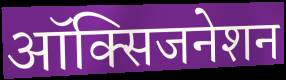
ऑक्सिजनेशन